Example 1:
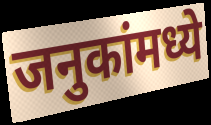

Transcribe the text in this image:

जनुकांमध्ये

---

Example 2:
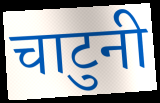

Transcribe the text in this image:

चाटुनी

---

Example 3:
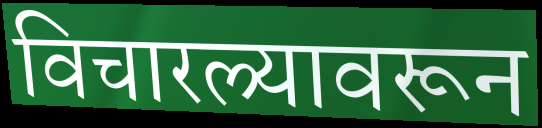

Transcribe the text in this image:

विचारल्यावरून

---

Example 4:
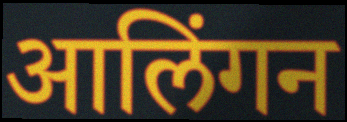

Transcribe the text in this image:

आलिंगन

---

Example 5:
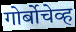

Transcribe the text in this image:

गोर्बोचेव्ह